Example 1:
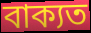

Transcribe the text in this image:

বাক্যত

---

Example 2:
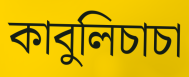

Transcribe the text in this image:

কাবুলিচাচা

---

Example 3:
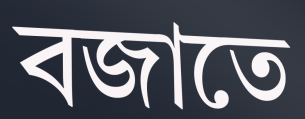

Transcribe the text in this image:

বজাতে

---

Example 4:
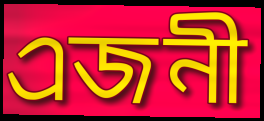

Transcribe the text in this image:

এজনী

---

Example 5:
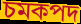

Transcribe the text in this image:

চমকপদ